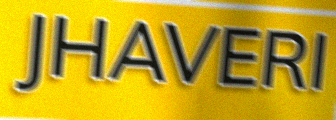
JHAVERI